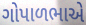
ગોપાળભાએ